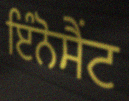
ਇੰਨੋਸੈਂਟ